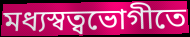
মধ্যস্বত্বভোগীতে